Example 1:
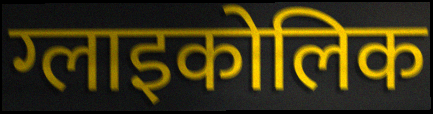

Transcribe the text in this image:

ग्लाइकोलिक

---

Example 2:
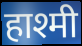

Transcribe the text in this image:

हाश्मी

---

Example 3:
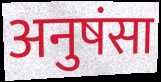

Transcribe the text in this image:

अनुषंसा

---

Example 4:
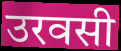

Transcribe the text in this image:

उरवसी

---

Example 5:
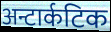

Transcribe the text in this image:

अन्टार्कटिक